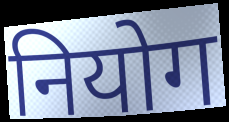
नियोग